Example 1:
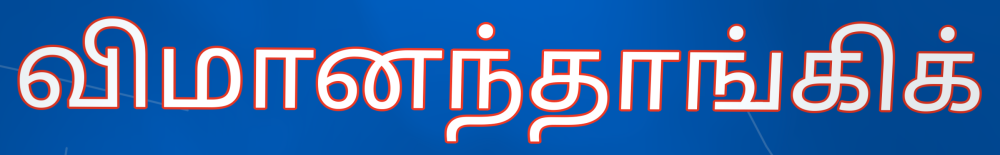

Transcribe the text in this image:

விமானந்தாங்கிக்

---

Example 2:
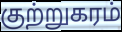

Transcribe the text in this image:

குற்றுகரம்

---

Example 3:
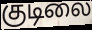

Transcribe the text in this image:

குடிலை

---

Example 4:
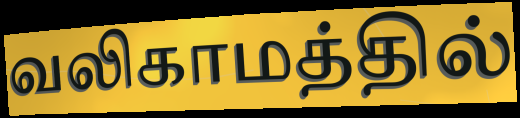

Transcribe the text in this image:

வலிகாமத்தில்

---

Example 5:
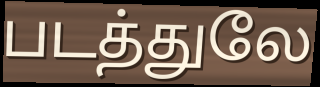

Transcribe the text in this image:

படத்துலே